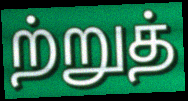
ற்றுத்